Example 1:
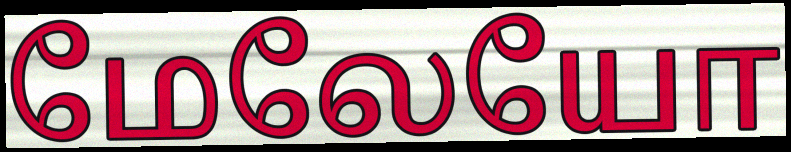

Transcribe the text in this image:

மேலேயோ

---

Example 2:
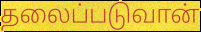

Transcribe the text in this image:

தலைப்படுவான்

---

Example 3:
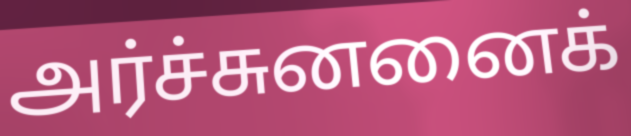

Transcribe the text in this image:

அர்ச்சுனனைக்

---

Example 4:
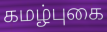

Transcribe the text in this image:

கமழ்புகை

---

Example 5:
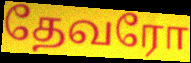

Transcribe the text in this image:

தேவரோ